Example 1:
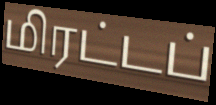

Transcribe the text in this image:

மிரட்டப்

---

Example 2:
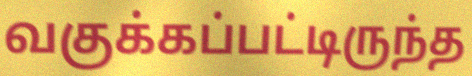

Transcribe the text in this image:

வகுக்கப்பட்டிருந்த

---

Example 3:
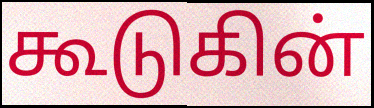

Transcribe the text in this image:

கூடுகின்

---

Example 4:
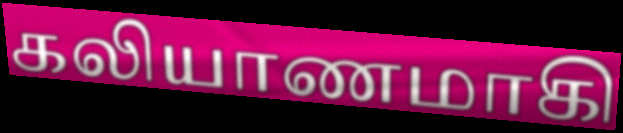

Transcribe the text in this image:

கலியாணமாகி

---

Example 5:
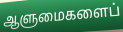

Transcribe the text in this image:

ஆளுமைகளைப்